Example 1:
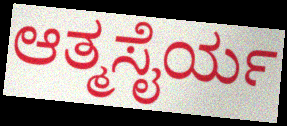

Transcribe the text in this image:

ಆತ್ಮಸೈರ್ಯ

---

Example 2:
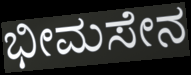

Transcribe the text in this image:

ಭೀಮಸೇನ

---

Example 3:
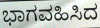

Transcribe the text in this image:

ಭಾಗವಹಿಸಿದ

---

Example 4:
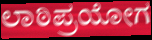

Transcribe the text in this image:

ಲಾಠಿಪ್ರಯೋಗ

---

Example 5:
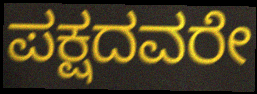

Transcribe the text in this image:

ಪಕ್ಷದವರೇ